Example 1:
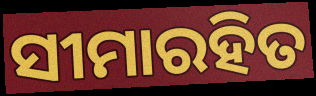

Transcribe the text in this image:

ସୀମାରହିତ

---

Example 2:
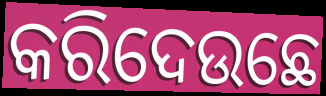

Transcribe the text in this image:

କରିଦେଉଛେ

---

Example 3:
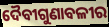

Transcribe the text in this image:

ଦୈବୀଗୁଣାବଳୀର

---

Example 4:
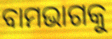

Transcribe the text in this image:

ବାମଭାଗକୁ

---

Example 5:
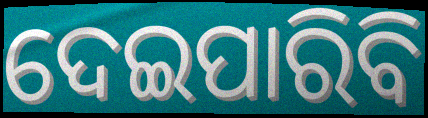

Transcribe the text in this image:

ଦେଇପାରିବି